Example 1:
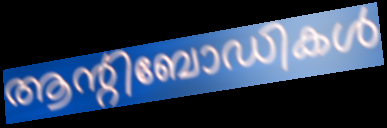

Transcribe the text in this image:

ആന്റിബോഡികൾ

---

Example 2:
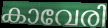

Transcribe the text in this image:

കാവേരി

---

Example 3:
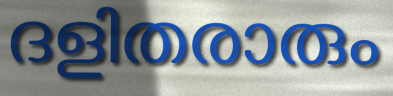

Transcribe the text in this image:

ദളിതരാരും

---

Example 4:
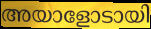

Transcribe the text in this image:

അയാളോടായി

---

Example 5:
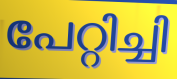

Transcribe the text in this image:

പേറ്റിച്ചി